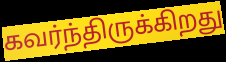
கவர்ந்திருக்கிறது